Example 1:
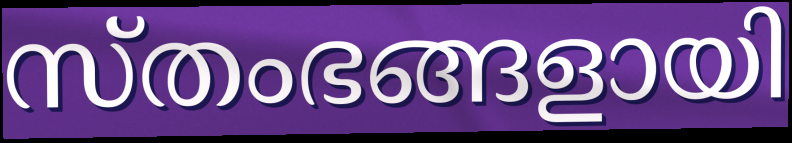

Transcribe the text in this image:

സ്തംഭങ്ങളായി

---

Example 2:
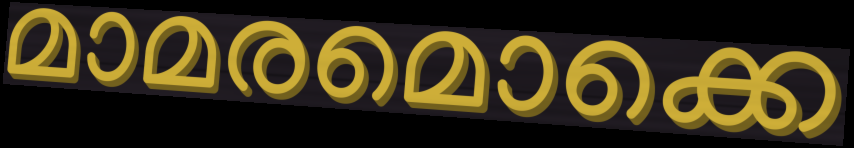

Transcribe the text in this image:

മാമരമൊക്കെ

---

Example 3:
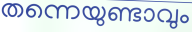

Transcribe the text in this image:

തന്നെയുണ്ടാവും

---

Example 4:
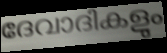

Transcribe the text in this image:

ദേവാദികളും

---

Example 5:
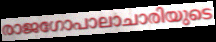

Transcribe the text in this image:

രാജഗോപാലാചാരിയുടെ